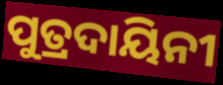
ପୁତ୍ରଦାୟିନୀ